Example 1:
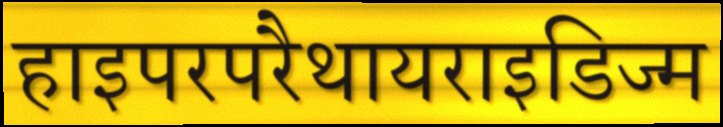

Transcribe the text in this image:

हाइपरपरैथायराइडिज्म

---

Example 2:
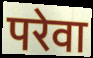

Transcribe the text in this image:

परेवा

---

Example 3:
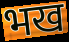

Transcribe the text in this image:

भख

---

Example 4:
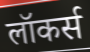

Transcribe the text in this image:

लॉकर्स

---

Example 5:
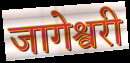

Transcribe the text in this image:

जागेश्वरी